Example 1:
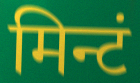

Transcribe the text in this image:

मिन्टं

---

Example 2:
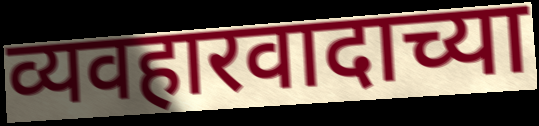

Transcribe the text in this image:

व्यवहारवादाच्या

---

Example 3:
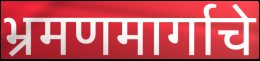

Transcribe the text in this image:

भ्रमणमार्गाचे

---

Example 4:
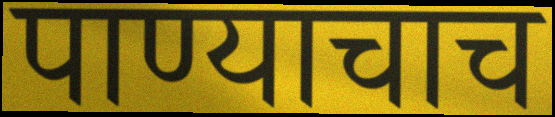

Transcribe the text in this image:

पाण्याचाच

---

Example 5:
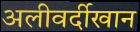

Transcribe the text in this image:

अलीवर्दीखान